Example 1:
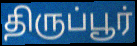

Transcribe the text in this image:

திருப்பூர்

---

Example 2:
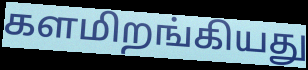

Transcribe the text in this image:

களமிறங்கியது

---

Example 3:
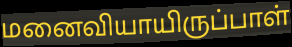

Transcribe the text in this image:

மனைவியாயிருப்பாள்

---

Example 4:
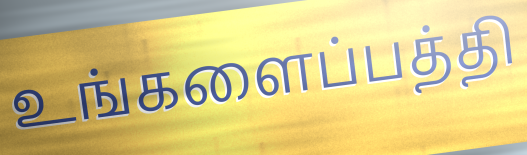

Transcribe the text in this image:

உங்களைப்பத்தி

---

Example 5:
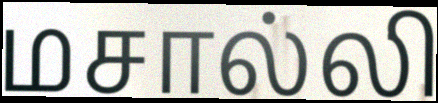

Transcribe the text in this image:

மசால்லி